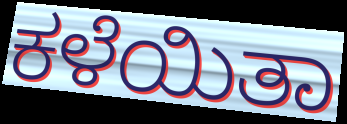
ಕಳೆಯಿತಾ